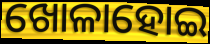
ଖୋଳାହୋଇ